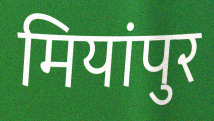
मियांपुर